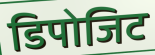
डिपोजिट